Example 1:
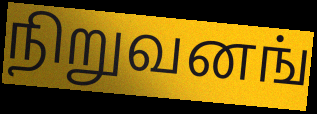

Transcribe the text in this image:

நிறுவனங்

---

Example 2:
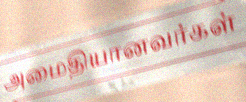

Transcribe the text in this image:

அமைதியானவர்கள்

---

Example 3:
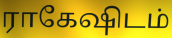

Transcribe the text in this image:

ராகேஷிடம்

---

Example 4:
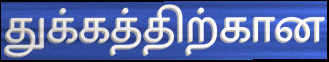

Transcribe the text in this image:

துக்கத்திற்கான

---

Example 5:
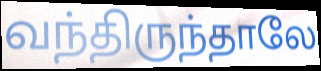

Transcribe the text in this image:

வந்திருந்தாலே